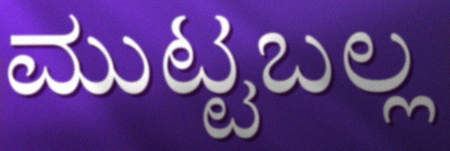
ಮುಟ್ಟಬಲ್ಲ